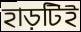
হাড়টিই